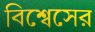
বিশ্বেসের